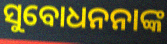
ସୁବୋଧନନାଙ୍କ